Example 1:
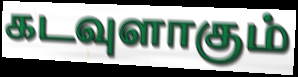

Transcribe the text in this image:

கடவுளாகும்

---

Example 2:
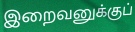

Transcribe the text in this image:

இறைவனுக்குப்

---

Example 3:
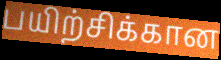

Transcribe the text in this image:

பயிற்சிக்கான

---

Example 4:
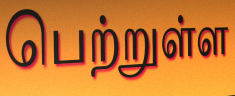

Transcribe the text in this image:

பெற்றுள்ள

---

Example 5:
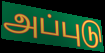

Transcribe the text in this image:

அப்புடு